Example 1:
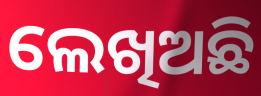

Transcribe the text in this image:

ଲେଖିଅଛି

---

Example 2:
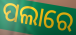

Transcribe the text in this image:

ପଲାରେ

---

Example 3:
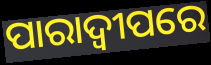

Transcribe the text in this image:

ପାରାଦ୍ୱୀପରେ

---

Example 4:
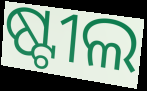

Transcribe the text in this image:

ଷ୍ଟୀଲ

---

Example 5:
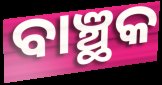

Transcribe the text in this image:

ବାଞ୍ଛକ